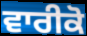
ਵਾਰੀਕੋ